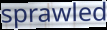
sprawled